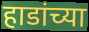
हाडांच्या